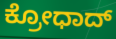
ಕ್ರೋಧಾದ್